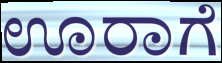
ಊರಾಗೆ